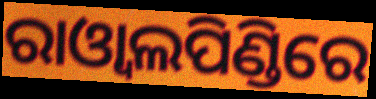
ରାଓ୍ଵାଲପିଣ୍ଡିରେ